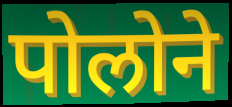
पोलोने